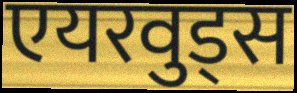
एयरवुड्स